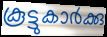
കൂട്ടുകാർക്കു